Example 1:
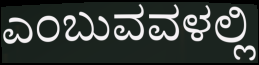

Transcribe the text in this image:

ಎಂಬುವವಳಲ್ಲಿ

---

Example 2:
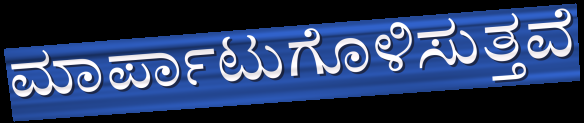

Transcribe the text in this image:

ಮಾರ್ಪಾಟುಗೊಳಿಸುತ್ತವೆ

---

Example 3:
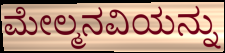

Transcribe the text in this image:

ಮೇಲ್ಮನವಿಯನ್ನು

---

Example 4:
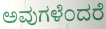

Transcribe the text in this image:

ಅವುಗಳೆಂದರೆ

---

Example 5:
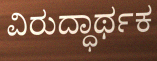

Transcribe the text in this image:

ವಿರುದ್ಧಾರ್ಥಕ